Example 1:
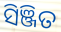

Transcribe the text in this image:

ସିଞ୍ଜିତ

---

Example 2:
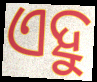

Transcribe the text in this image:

ଏହୁ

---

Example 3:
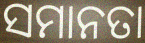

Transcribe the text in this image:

ସମାନତା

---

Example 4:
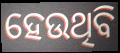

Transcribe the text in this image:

ହେଉଥିବି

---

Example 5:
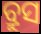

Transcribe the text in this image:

ବ୍ରୁସ